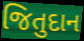
જિતુદાન